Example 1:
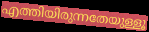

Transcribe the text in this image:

എത്തിയിരുന്നതേയുള്ളൂ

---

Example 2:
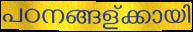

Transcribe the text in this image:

പഠനങ്ങള്ക്കായി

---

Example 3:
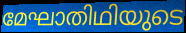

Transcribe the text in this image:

മേഘാതിഥിയുടെ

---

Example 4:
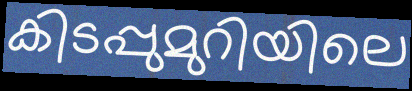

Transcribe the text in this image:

കിടപ്പുമുറിയിലെ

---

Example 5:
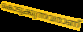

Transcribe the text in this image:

കൊടുക്കുന്നവരാണ്